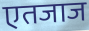
एतजाज